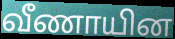
வீணாயின